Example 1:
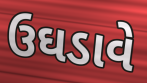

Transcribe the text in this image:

ઉઘડાવે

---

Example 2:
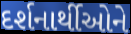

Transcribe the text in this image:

દર્શનાર્થીઓને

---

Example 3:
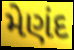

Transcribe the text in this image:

મેણંદ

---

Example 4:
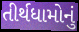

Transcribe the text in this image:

તીર્થધામોનું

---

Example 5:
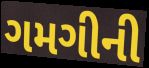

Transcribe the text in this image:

ગમગીની